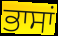
ਭਾਸਾਂ